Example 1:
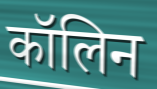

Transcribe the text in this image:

कॉलिन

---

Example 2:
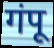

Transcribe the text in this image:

गंपू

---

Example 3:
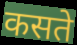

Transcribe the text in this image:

कसते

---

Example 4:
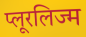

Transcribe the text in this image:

प्लूरलिज्म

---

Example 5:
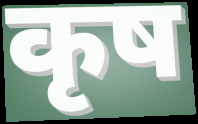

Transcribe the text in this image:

कृष